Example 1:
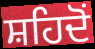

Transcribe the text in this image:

ਸ਼ਹਿਦੋਂ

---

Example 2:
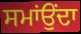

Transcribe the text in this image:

ਸਮਾਂਉਂਦਾ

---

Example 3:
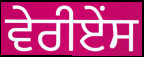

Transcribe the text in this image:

ਵੇਰੀਏਂਸ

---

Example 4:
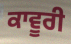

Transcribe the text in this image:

ਕਾਵੂਰੀ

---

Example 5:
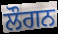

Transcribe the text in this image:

ਲੌਗਨ